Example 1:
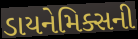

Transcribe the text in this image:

ડાયનેમિક્સની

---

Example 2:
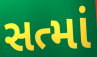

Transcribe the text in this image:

સત્માં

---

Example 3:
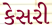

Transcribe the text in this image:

કેસરી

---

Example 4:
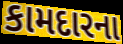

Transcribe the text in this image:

કામદારના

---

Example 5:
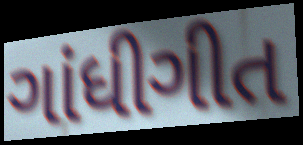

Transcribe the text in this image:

ગાંધીગીત